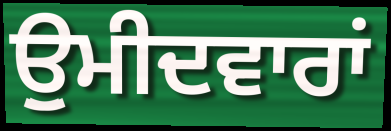
ਉੁਮੀਦਵਾਰਾਂ